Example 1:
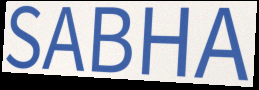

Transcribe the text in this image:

SABHA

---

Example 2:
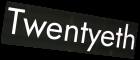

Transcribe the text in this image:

Twentyeth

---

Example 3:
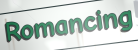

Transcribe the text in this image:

Romancing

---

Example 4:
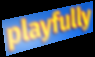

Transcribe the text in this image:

playfully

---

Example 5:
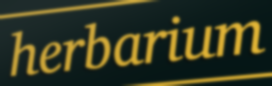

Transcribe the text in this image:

herbarium